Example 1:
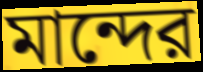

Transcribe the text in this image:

মান্দের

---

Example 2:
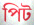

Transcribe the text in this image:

পিট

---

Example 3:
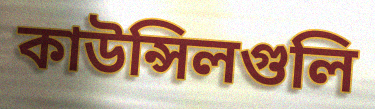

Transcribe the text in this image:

কাউন্সিলগুলি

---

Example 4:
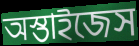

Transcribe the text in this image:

অস্তাইজেস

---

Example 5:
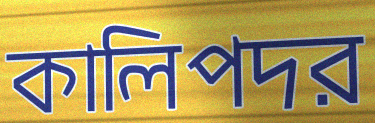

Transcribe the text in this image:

কালিপদর